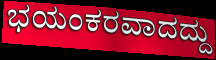
ಭಯಂಕರವಾದದ್ದು